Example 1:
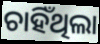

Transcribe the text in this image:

ଚାହିଁଥିଲା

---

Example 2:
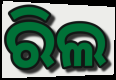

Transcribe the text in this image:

ରିଲ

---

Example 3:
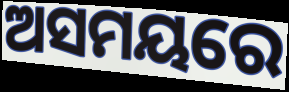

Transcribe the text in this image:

ଅସମୟରେ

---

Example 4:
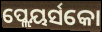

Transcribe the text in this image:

ପ୍ଲେୟର୍ସକୋ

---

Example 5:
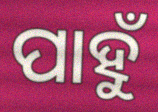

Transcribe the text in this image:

ପାହୁଁ